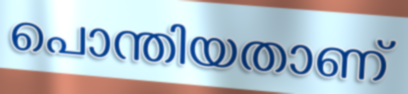
പൊന്തിയതാണ്